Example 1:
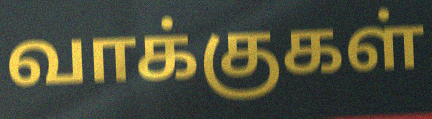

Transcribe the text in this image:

வாக்குகள்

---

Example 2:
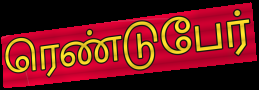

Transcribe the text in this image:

ரெண்டுபேர்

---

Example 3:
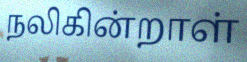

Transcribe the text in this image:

நலிகின்றாள்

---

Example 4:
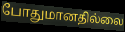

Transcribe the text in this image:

போதுமானதில்லை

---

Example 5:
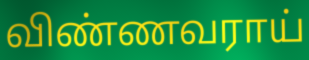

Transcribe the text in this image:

விண்ணவராய்